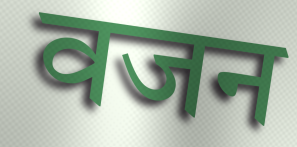
वजन